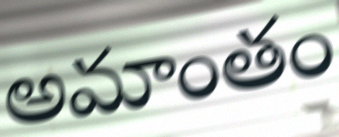
అమాంతం